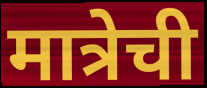
मात्रेची